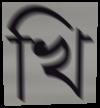
খি